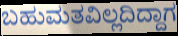
ಬಹುಮತವಿಲ್ಲದಿದ್ದಾಗ